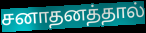
சனாதனத்தால்